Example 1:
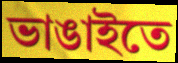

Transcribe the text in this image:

ভাঙাইতে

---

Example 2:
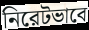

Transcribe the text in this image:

নিরেটভাবে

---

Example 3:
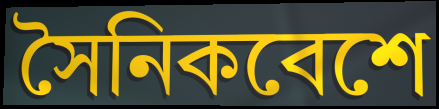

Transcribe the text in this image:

সৈনিকবেশে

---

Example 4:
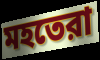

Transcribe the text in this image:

মহতেরা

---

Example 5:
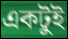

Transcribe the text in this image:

একটুই